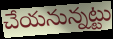
చేయనున్నట్టు